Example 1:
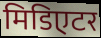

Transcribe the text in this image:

मिडिएटर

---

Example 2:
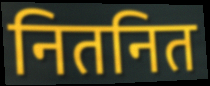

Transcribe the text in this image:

नितनित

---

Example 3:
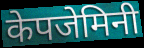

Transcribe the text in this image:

केपजेमिनी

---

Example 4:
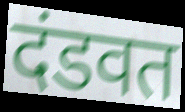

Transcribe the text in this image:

दंडवत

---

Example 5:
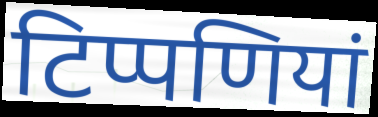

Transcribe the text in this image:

टिप्‍पणियां